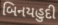
બિનયહુદી